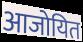
आजोयित